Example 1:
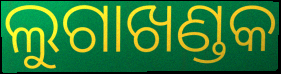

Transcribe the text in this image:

ଲୁଗାଖଣ୍ଡକ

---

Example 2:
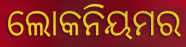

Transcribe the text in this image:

ଲୋକନିୟମର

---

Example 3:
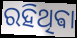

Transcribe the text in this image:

ରହିଥିଵା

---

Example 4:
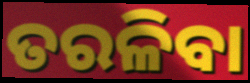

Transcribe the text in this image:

ତରଳିବା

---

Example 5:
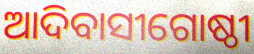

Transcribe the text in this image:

ଆଦିବାସୀଗୋଷ୍ଠୀ